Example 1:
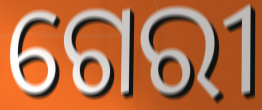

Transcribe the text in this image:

ଗେରୀ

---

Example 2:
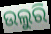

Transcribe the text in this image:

ଉଲୁରି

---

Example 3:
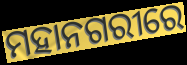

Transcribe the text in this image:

ମହାନଗରୀରେ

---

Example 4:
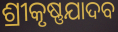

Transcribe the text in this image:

ଶ୍ରୀକୃଷ୍ଣଯାଦବ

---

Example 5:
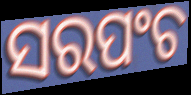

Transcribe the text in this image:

ସରପଂଚ